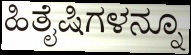
ಹಿತೈಷಿಗಳನ್ನೂ